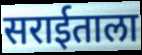
सराईताला